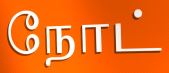
நோட்